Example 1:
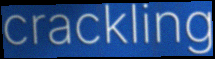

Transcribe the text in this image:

crackling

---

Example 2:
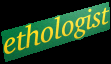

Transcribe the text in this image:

ethologist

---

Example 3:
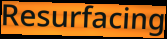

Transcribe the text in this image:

Resurfacing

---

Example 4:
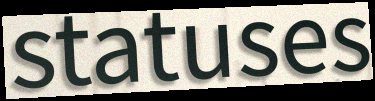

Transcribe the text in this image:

statuses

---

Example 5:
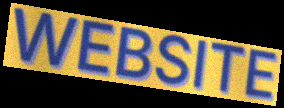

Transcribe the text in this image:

WEBSITE